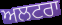
ਅਲਟਰਾ